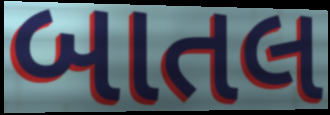
બાતલ